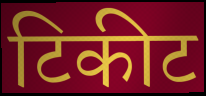
टिकीट